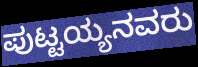
ಪುಟ್ಟಯ್ಯನವರು